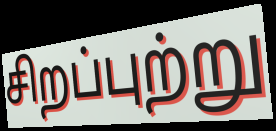
சிறப்புற்று